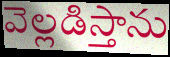
వెల్లడిస్తాను